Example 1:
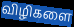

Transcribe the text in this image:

விழிகளை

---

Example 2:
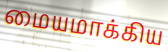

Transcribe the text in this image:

மையமாக்கிய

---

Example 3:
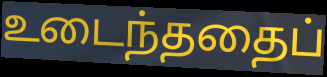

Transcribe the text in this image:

உடைந்ததைப்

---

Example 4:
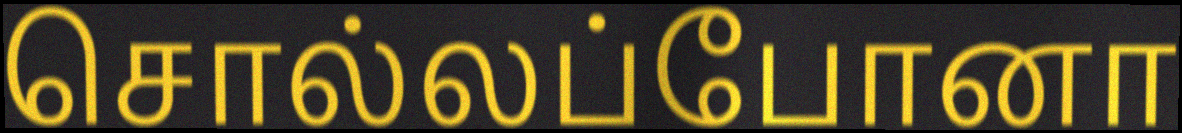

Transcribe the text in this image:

சொல்லப்போனா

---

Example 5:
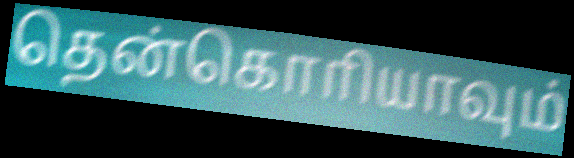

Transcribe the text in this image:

தென்கொரியாவும்